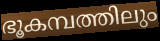
ഭൂകമ്പത്തിലും